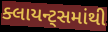
ક્લાયન્ટ્સમાંથી